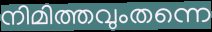
നിമിത്തവുംതന്നെ